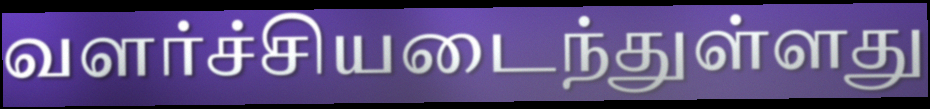
வளர்ச்சியடைந்துள்ளது